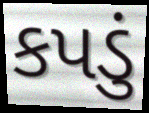
કપડું